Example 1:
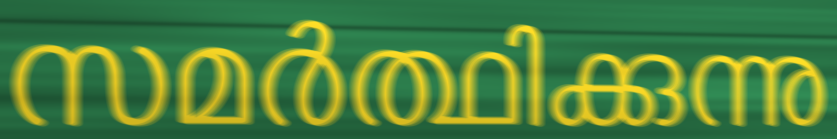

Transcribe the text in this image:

സമർത്ഥിക്കുന്നു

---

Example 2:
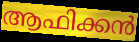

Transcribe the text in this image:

ആഫിക്കൻ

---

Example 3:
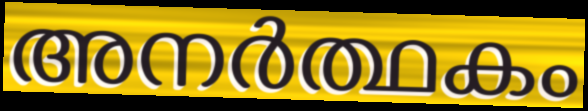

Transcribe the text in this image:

അനർത്ഥകം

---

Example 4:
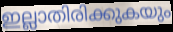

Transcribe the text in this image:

ഇല്ലാതിരിക്കുകയും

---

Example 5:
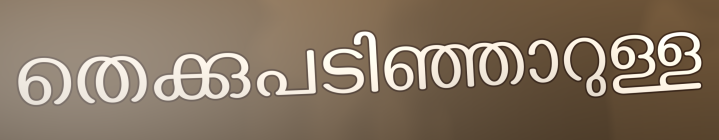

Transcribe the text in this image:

തെക്കുപടിഞ്ഞാറുള്ള